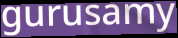
gurusamy